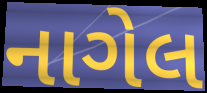
નાગેલ